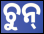
ଚୁନ୍